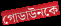
গোডাউনকে